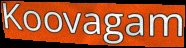
Koovagam